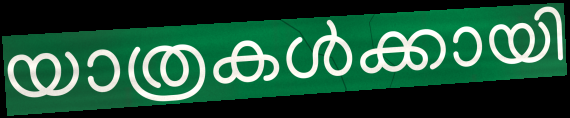
യാത്രകൾക്കായി